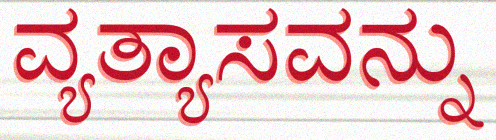
ವ್ಯತ್ಯಾಸವನ್ನು